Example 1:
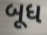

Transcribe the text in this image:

બૂધ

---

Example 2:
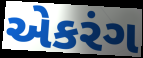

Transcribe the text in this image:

એકરંગ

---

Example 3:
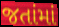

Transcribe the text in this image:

જતાંમાં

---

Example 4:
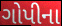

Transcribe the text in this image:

ગોપીના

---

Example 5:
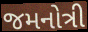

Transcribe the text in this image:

જમનોત્રી